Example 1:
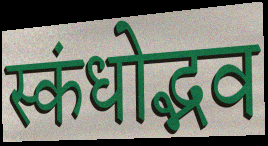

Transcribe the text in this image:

स्कंधोद्भव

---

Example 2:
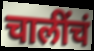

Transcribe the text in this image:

चालींचं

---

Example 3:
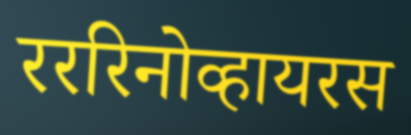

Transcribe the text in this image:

रररिनोव्हायरस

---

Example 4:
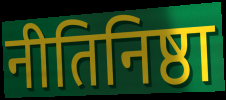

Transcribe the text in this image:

नीतिनिष्ठा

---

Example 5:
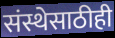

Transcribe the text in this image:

संस्थेसाठीही